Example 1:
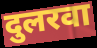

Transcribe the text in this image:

दुलरवा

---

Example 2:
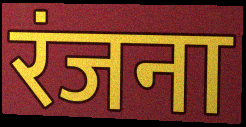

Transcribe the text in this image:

रंजना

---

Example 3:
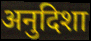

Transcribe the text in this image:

अनुदिशा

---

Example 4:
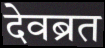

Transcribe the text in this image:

देवब्रत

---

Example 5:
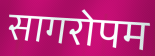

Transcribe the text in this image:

सागरोपम